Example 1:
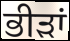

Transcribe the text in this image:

ਭੀੜਾਂ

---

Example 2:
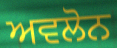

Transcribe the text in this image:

ਅਵਲੋਨ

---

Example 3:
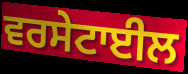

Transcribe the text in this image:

ਵਰਸੇਟਾਈਲ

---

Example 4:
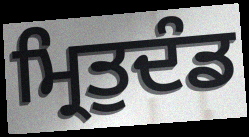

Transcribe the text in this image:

ਮ੍ਰਿਤੁਦੰਡ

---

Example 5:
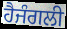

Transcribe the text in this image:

ਹੈਜੰਗਲੀ